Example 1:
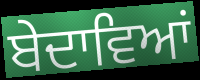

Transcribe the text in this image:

ਬੇਦਾਵਿਆਂ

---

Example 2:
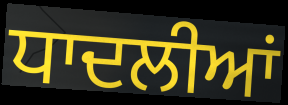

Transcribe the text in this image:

ਧਾਦਲੀਆਂ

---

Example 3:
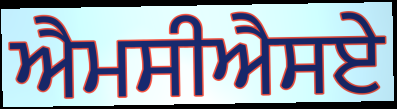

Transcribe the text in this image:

ਐਮਸੀਐਸਏ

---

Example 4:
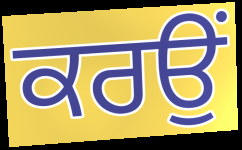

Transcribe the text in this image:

ਕਰਉਂ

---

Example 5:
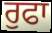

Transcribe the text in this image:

ਰੁਫਾ